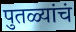
पुतळ्यांचं